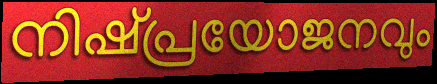
നിഷ്പ്രയോജനവും